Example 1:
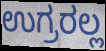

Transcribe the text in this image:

ಉಗ್ರರಲ್ಲ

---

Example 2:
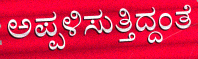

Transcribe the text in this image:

ಅಪ್ಪಳಿಸುತ್ತಿದ್ದಂತೆ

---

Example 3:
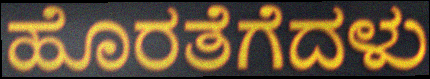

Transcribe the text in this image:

ಹೊರತೆಗೆದಳು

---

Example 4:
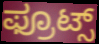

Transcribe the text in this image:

ಫ್ರೂಟ್ಸ್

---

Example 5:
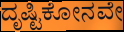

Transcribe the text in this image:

ದೃಷ್ಟಿಕೋನವೇ